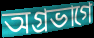
অগ্রভাগে